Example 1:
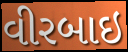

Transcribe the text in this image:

વીરબાઇ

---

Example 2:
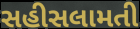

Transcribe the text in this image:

સહીસલામતી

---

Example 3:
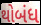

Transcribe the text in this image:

થોબંધ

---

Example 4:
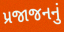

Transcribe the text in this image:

પ્રજાજનનું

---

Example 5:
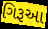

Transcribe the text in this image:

ગિરૂઆ